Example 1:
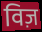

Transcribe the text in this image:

विज़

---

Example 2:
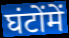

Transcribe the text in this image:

घंटोंमें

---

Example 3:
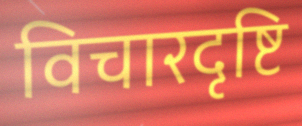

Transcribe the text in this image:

विचारदृष्टि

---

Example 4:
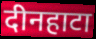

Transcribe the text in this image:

दीनहाटा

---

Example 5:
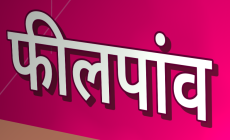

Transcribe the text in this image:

फीलपांव